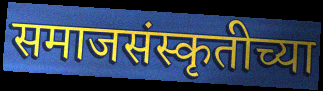
समाजसंस्कृतीच्या